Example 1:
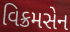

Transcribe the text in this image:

વિક્રમસેન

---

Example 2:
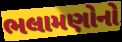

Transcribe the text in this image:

ભલામણોનો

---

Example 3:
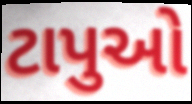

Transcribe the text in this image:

ટાપુઓ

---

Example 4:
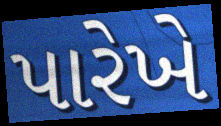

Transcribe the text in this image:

પારેખે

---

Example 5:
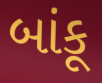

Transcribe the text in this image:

બાંકૂ